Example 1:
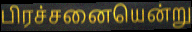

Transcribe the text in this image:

பிரச்சனையென்று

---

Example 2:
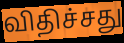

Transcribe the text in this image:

விதிச்சது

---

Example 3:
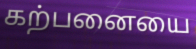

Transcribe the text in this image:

கற்பனையை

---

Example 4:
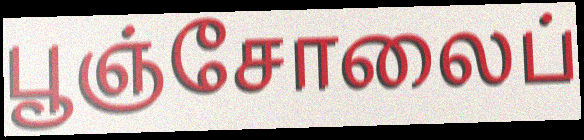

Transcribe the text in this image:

பூஞ்சோலைப்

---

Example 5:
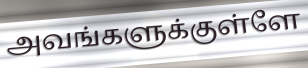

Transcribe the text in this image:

அவங்களுக்குள்ளே